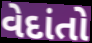
વેદાંતો